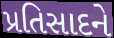
પ્રતિસાદને